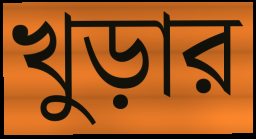
খুড়ার